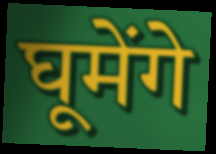
घूमेंगे